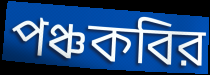
পঞ্চকবির